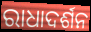
ରାଧାଦର୍ଶନ